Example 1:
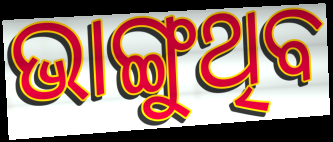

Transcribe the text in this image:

ଭାଙ୍ଗୁଥିବ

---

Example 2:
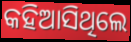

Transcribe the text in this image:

କହିଆସିଥିଲେ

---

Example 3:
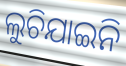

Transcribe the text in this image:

ଲୁଚିଯାଇନି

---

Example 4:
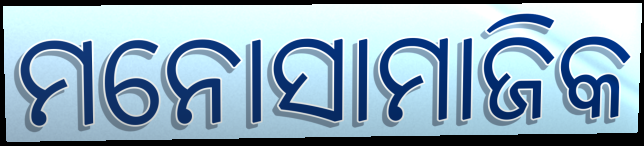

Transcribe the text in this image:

ମନୋସାମାଜିକ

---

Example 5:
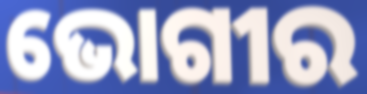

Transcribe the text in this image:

ଭୋଗୀର